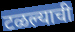
टळल्याची